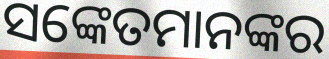
ସଙ୍କେତମାନଙ୍କର